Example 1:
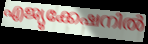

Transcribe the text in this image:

എജ്യുക്കേഷനിൽ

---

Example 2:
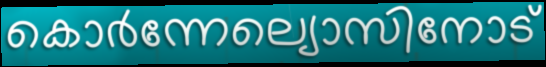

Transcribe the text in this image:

കൊർന്നേല്യൊസിനോട്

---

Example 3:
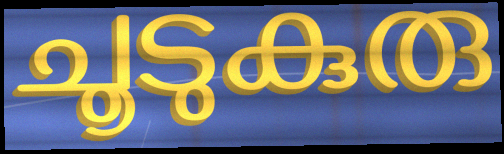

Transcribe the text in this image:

ചൂടുകുരു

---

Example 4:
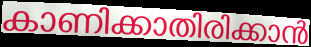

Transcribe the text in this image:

കാണിക്കാതിരിക്കാൻ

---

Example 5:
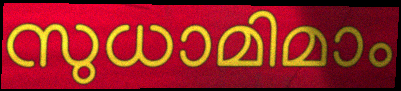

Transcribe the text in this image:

സുധാമിമാം